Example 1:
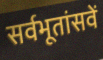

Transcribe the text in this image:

सर्वभूतांसवें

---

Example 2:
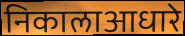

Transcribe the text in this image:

निकालाआधारे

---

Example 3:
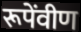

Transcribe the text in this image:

रूपेंवीण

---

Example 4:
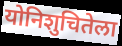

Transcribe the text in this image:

योनिशुचितेला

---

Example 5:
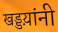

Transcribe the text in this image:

खड्डय़ांनी